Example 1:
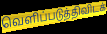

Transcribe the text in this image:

வெளிப்படுத்திவிடக்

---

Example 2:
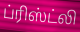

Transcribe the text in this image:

ப்ரிஸ்ட்லி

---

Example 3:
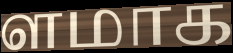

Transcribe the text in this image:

ளமாக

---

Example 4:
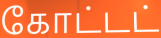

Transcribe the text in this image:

கோட்டட்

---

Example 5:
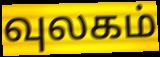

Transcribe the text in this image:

வுலகம்